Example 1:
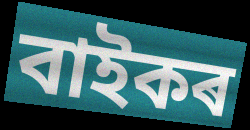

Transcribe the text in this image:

বাইকৰ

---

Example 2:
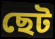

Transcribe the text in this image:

ছেট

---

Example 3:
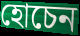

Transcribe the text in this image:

হোচেন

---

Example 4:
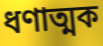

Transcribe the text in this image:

ধণাত্মক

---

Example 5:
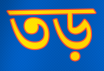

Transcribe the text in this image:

তড়